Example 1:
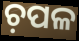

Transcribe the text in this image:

ଚ଼ପଳ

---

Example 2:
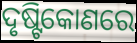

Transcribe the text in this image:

ଦୃଷ୍ଟିକୋଣରେ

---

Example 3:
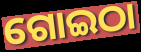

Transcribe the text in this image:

ଗୋଇଠା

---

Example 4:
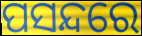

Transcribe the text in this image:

ପସନ୍ଦରେ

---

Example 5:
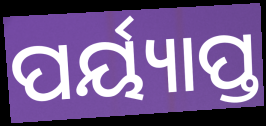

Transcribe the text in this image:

ପର୍ୟ୍ୟାପ୍ତ